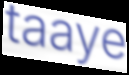
taaye